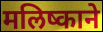
मलिष्काने